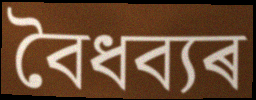
বৈধব্যৰ